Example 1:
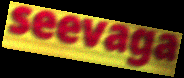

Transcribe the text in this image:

seevaga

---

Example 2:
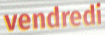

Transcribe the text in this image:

vendredi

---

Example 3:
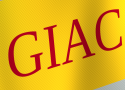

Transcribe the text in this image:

GIAC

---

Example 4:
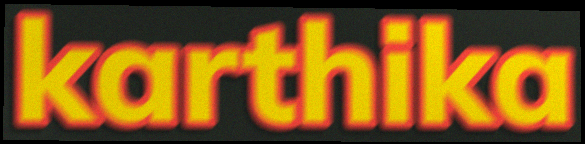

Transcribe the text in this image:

karthika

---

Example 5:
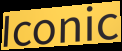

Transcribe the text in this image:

Iconic